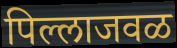
पिल्लाजवळ